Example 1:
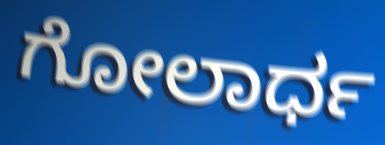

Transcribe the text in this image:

ಗೋಲಾರ್ಧ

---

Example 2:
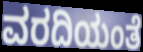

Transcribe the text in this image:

ವರದಿಯಂತೆ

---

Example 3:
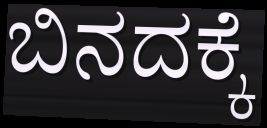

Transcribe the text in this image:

ಬಿನದಕ್ಕೆ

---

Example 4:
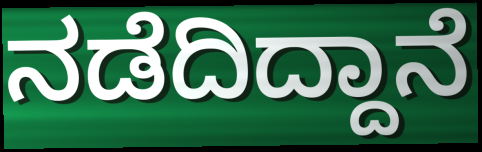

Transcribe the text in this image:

ನಡೆದಿದ್ದಾನೆ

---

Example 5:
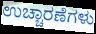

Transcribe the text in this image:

ಉಚ್ಚಾರಣೆಗಳು